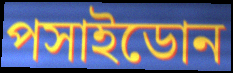
পসাইডোন